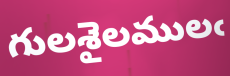
గులశైలములఁ